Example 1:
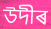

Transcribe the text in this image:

উদীৰ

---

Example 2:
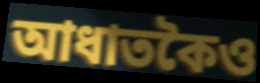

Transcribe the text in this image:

আধাতকৈও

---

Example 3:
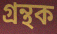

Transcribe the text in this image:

গ্ৰন্থক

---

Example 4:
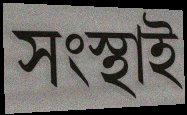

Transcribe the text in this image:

সংস্থাই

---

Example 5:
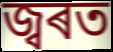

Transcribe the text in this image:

জ্বৰত